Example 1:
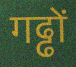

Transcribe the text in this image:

गढ्ढों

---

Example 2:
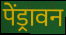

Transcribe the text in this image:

पेंड्रावन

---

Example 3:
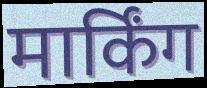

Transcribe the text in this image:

मार्किंग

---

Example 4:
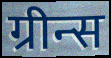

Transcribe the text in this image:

ग्रीन्स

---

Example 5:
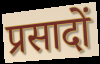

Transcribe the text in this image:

प्रसादों